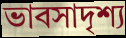
ভাবসাদৃশ্য